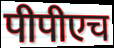
पीपीएच